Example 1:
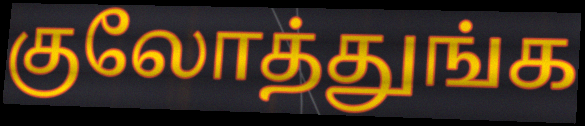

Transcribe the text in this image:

குலோத்துங்க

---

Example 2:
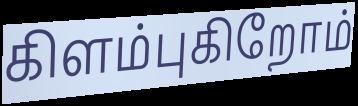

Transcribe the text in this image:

கிளம்புகிறோம்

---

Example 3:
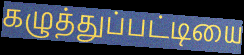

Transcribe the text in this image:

கழுத்துப்பட்டியை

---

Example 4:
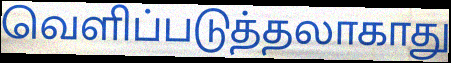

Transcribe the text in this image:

வெளிப்படுத்தலாகாது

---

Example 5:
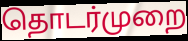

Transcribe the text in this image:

தொடர்முறை